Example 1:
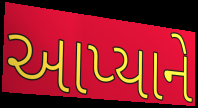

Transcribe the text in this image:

આપ્યાને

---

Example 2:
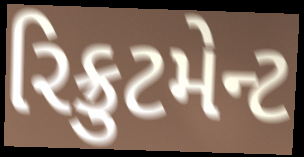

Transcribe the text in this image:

રિક્રુટમેન્ટ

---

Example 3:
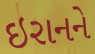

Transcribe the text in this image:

ઇરાનને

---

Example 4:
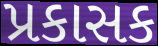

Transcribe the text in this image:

પ્રકાસક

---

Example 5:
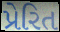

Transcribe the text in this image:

પ્રેરિત